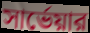
সার্ভেয়ার